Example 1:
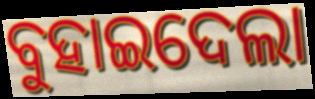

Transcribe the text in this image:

ବୁହାଇଦେଲା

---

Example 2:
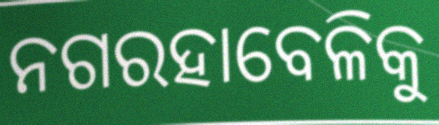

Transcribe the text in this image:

ନଗରହାବେଳିକୁ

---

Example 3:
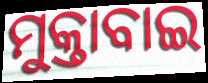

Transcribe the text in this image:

ମୁକ୍ତାବାଇ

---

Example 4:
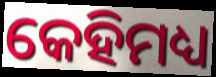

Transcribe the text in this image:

କେହିମଧ୍ୟ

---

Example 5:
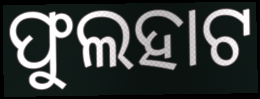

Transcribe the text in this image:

ଫୁଲହାଟ